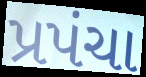
પ્રપંચા